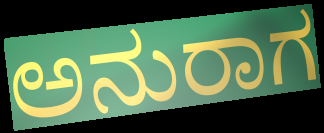
ಅನುರಾಗ